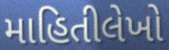
માહિતીલેખો